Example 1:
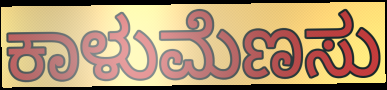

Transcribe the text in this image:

ಕಾಳುಮೆಣಸು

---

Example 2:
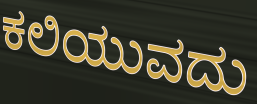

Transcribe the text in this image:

ಕಲಿಯುವದು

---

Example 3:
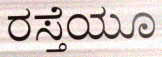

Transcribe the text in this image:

ರಸ್ತೆಯೂ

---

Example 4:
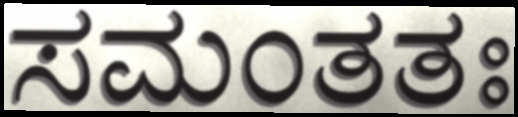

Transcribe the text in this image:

ಸಮಂತತಃ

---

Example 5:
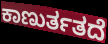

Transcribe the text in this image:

ಕಾಣುರ್ತತದೆ